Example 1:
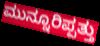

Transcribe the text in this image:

ಮುನ್ನೂರಿಪ್ಪತ್ತು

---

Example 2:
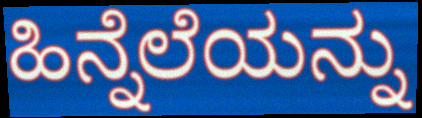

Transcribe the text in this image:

ಹಿನ್ನೆಲೆಯನ್ನು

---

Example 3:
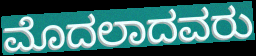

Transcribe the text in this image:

ಮೊದಲಾದವರು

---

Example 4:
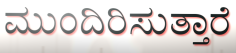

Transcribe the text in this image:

ಮುಂದಿರಿಸುತ್ತಾರೆ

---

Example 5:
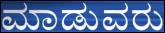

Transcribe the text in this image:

ಮಾಡುವರು